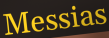
Messias